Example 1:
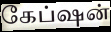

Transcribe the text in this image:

கேப்ஷன்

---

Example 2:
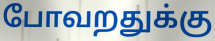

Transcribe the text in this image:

போவறதுக்கு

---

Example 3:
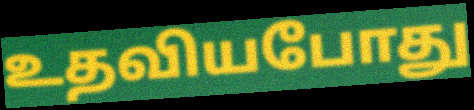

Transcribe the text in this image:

உதவியபோது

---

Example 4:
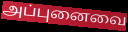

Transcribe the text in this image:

அப்புனைவை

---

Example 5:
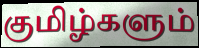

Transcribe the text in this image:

குமிழ்களும்